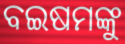
ବଇଷମଙ୍କୁ